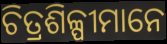
ଚିତ୍ରଶିଳ୍ପୀମାନେ